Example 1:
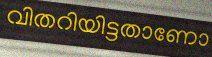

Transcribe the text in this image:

വിതറിയിട്ടതാണോ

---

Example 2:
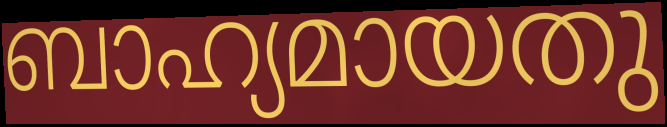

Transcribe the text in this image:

ബാഹ്യമായതു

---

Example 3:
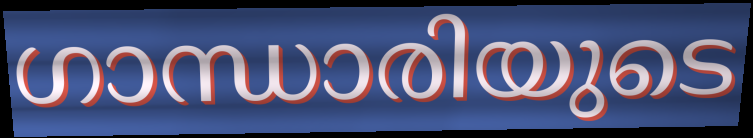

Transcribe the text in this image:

ഗാന്ധാരിയുടെ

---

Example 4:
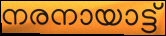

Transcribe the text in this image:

നരനായാട്ട്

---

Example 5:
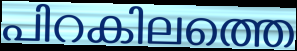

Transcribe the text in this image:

പിറകിലത്തെ